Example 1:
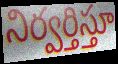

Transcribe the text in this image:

నిర్వర్తిస్తూ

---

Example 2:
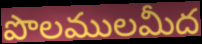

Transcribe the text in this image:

పొలములమీద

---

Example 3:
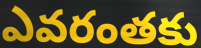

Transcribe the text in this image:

ఎవరంతకు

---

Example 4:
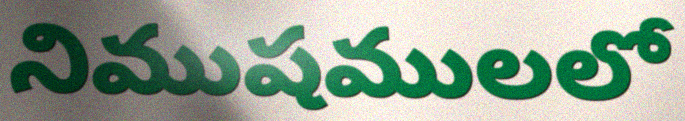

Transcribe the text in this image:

నిముషములలో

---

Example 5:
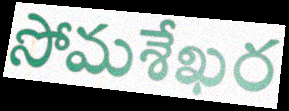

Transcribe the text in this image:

సోమశేఖర